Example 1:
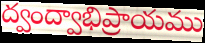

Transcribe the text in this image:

ద్వంద్వాభిప్రాయము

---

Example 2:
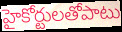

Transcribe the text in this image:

హైకోర్టులతోపాటు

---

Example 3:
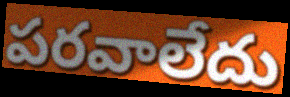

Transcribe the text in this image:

పరవాలేదు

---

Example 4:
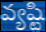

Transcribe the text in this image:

వ్యష్టి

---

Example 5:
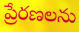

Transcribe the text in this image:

ప్రేరణలను